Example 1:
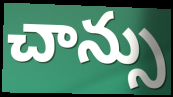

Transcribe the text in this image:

చాన్సు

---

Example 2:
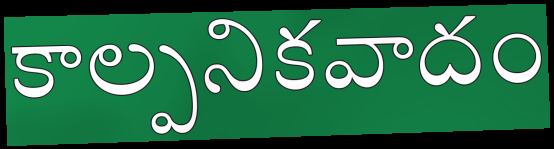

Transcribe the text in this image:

కాల్పనికవాదం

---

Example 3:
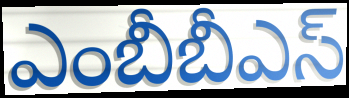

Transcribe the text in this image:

ఎంబీబీఎస్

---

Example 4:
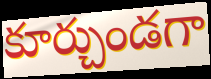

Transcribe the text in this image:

కూర్చుండగా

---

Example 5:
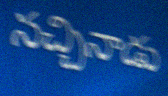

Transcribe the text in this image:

సచ్చినాడు